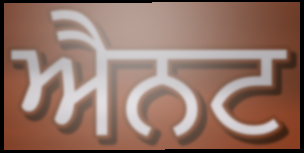
ਐਨਟ